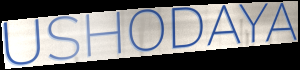
USHODAYA